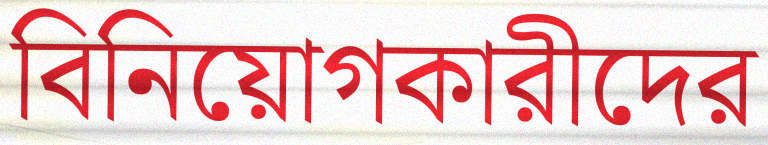
বিনিয়োগকারীদের